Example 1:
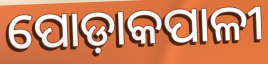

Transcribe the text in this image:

ପୋଡ଼ାକପାଳୀ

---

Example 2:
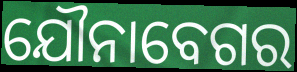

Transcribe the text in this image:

ଯୌନାବେଗର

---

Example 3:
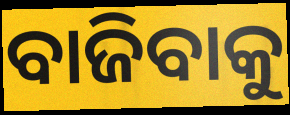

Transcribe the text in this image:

ବାଜିବାକୁ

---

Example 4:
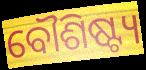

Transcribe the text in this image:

ବୌଶିଷ୍ଟ୍ୟ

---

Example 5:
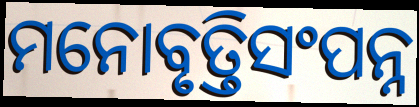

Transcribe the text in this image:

ମନୋବୃତ୍ତିସଂପନ୍ନ